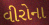
વીરોના